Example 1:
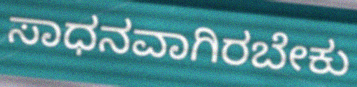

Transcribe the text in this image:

ಸಾಧನವಾಗಿರಬೇಕು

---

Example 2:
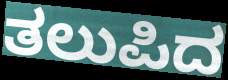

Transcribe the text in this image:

ತಲುಪಿದ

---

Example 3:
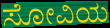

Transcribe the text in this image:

ಸೋವಿಯ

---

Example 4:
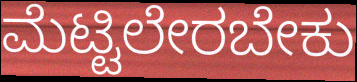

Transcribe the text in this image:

ಮೆಟ್ಟಿಲೇರಬೇಕು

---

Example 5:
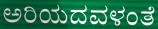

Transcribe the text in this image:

ಅರಿಯದವಳಂತೆ